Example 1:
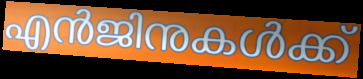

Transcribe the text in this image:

എൻജിനുകൾക്ക്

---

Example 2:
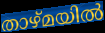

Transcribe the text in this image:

താഴ്മയിൽ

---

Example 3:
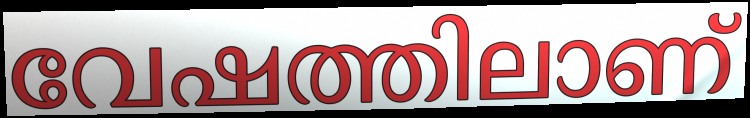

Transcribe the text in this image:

വേഷത്തിലാണ്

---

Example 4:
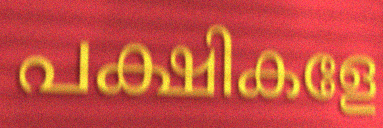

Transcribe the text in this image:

പക്ഷികളേ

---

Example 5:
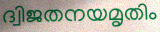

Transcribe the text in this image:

ദ്വിജതനയമൃതിം